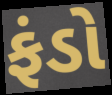
ફંડો